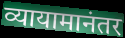
व्यायामानंतर